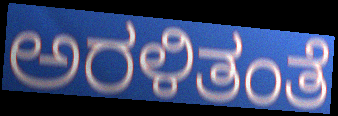
ಅರಳಿತಂತೆ